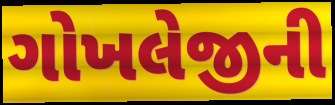
ગોખલેજીની